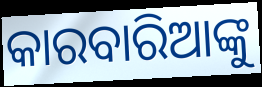
କାରବାରିଆଙ୍କୁ